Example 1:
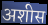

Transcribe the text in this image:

अशीस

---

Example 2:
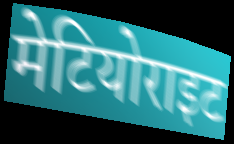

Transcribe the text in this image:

मेटियोराइट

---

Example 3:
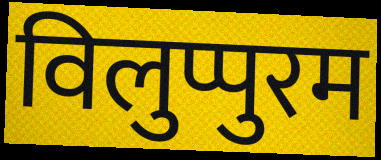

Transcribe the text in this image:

विलुप्पुरम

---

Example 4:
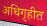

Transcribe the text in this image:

अधिगृहीत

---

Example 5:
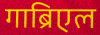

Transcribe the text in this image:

गाब्रिएल